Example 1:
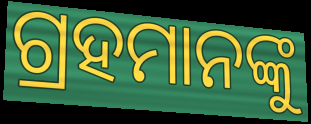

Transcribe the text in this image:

ଗ୍ରହମାନଙ୍କୁ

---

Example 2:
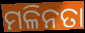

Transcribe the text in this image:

ମଳିନତା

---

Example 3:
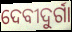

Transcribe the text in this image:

ଦେବୀଦୁର୍ଗା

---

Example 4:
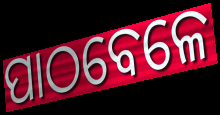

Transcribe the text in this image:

ପାଠବେଳେ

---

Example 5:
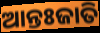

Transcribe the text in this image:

ଆନ୍ତଃଜାତି